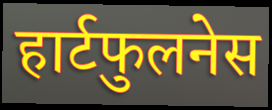
हार्टफुलनेस